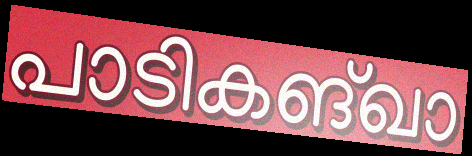
പാടികങ്ഖാ